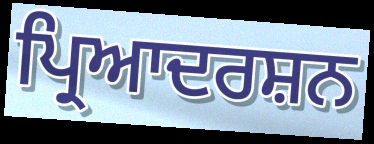
ਪ੍ਰਿਆਦਰਸ਼ਨ